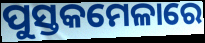
ପୁସ୍ତକମେଳାରେ